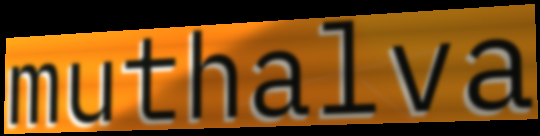
muthalva